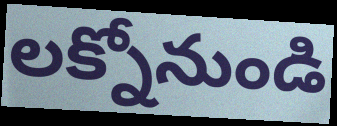
లక్నోనుండి